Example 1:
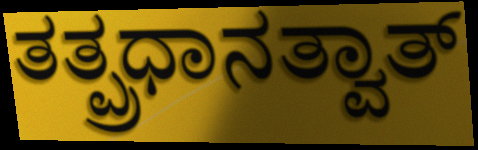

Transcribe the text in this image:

ತತ್ಪ್ರಧಾನತ್ವಾತ್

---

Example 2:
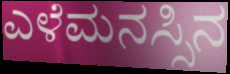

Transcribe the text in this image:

ಎಳೆಮನಸ್ಸಿನ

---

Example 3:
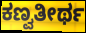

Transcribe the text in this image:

ಕಣ್ವತೀರ್ಥ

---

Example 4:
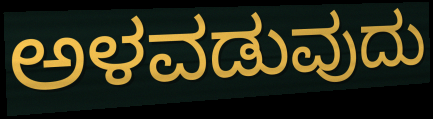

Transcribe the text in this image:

ಅಳವಡುವುದು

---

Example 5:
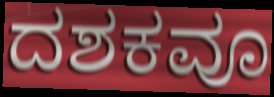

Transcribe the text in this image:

ದಶಕವೂ